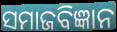
ସମାଜବିଜ୍ଞାନ